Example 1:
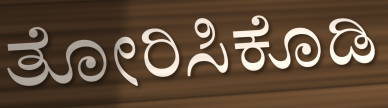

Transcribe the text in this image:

ತೋರಿಸಿಕೊಡಿ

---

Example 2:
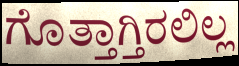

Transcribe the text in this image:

ಗೊತ್ತಾಗ್ತಿರಲಿಲ್ಲ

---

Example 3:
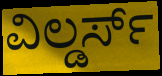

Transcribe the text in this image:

ವಿಲ್ಡರ್ಸ್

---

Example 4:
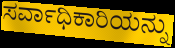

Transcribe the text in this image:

ಸರ್ವಾಧಿಕಾರಿಯನ್ನು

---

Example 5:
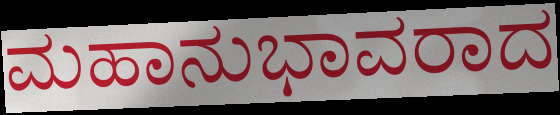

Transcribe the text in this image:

ಮಹಾನುಭಾವರಾದ